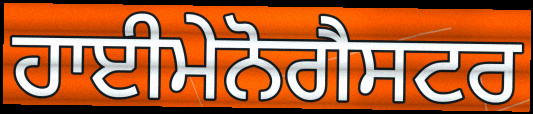
ਹਾਈਮੇਨੋਗੈਸਟਰ